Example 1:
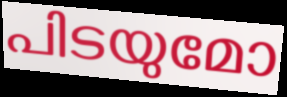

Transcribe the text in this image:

പിടയുമോ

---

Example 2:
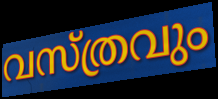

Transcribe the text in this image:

വസ്ത്രവും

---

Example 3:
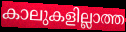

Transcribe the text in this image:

കാലുകളില്ലാത്ത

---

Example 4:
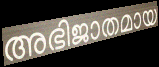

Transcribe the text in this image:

അഭിജാതമായ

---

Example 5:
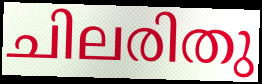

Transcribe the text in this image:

ചിലരിതു